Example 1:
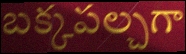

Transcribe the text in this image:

బక్కపల్చగా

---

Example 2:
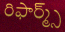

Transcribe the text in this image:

రిఫార్మ్స్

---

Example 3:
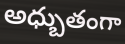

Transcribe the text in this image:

అధ్బుతంగా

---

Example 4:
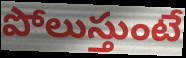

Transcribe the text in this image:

పోలుస్తుంటే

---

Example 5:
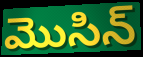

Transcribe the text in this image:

మొసిన్